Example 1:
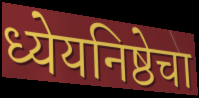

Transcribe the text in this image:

ध्येयनिष्ठेचा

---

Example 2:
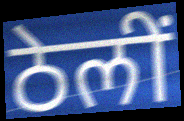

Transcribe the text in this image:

ठेलीं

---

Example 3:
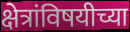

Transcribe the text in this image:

क्षेत्रांविषयीच्या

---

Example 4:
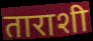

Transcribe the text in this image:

ताराशी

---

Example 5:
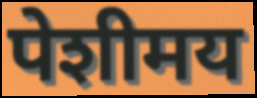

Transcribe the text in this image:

पेशीमय